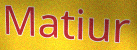
Matiur